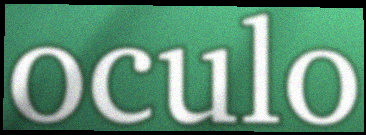
oculo